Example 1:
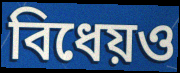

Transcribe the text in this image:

বিধেয়ও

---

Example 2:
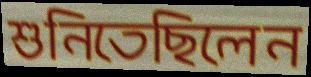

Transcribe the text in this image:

শুনিতেছিলেন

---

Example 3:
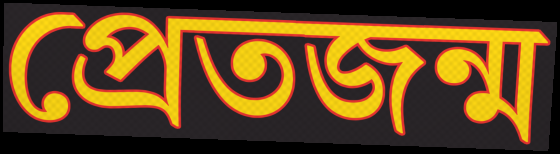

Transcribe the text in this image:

প্রেতজন্ম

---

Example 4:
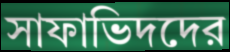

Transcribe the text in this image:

সাফাভিদদের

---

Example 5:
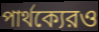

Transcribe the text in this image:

পার্থক্যেরও